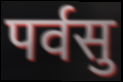
पर्वसु